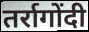
तर्रागोंदी